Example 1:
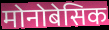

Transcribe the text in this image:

मोनोबेसिक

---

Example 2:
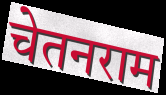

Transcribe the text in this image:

चेतनराम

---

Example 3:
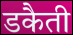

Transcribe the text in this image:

डकैती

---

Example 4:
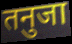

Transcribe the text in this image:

तनुजा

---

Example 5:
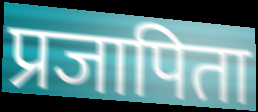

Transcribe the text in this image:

प्रजापिता